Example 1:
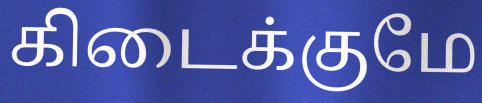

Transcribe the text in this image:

கிடைக்குமே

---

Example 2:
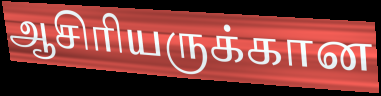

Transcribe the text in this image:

ஆசிரியருக்கான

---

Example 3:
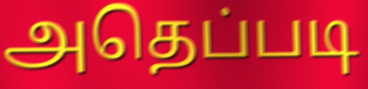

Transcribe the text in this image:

அதெப்படி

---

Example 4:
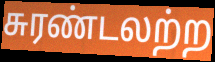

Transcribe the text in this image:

சுரண்டலற்ற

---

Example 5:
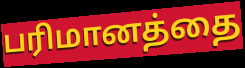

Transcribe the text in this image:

பரிமானத்தை